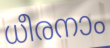
ധീരനാം